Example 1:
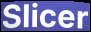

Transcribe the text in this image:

Slicer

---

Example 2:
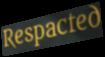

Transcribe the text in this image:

Respacted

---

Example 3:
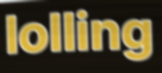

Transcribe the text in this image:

lolling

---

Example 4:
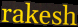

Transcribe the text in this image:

rakesh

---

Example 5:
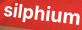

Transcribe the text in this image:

silphium